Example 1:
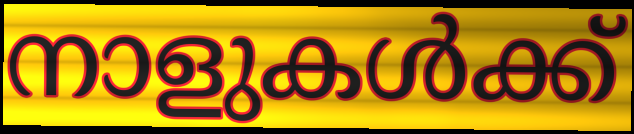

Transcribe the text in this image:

നാളുകൾക്ക്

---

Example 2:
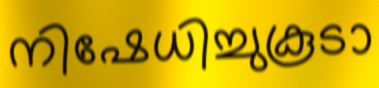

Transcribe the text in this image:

നിഷേധിച്ചുകൂടാ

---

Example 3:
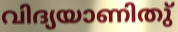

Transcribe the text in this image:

വിദ്യയാണിതു്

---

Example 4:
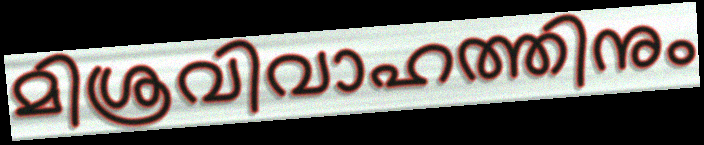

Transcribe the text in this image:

മിശ്രവിവാഹത്തിനും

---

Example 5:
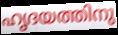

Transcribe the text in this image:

ഹൃദയത്തിനു